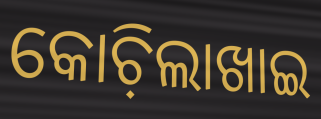
କୋଚ଼ିଲାଖାଇ